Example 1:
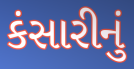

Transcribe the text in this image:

કંસારીનું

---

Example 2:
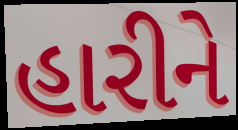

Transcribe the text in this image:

હારીને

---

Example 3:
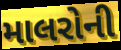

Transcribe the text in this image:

માલરોની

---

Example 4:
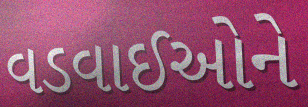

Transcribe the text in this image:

વડવાઈઓને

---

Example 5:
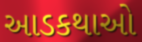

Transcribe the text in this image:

આડકથાઓ